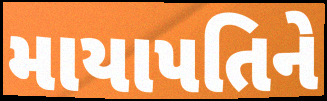
માયાપતિને